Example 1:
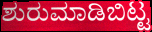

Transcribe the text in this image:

ಶುರುಮಾಡಿಬಿಟ್ಟ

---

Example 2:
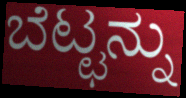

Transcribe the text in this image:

ಬೆಟ್ಟನ್ನು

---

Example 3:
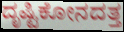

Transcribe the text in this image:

ದೃಷ್ಟಿಕೋನದತ್ತ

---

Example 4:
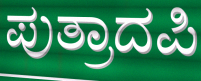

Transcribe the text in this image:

ಪುತ್ರಾದಪಿ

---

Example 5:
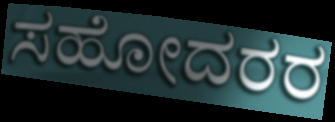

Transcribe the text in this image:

ಸಹೋದರರ